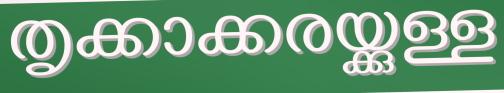
തൃക്കാക്കരയ്ക്കുള്ള